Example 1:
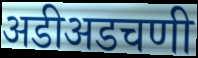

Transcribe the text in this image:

अडीअडचणी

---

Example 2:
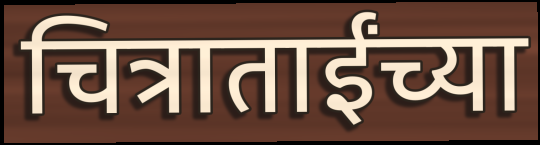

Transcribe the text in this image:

चित्राताईंच्या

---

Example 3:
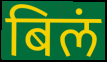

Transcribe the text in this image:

बिलं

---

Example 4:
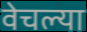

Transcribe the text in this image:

वेचल्या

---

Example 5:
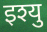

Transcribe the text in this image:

इश्यु